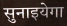
सुनाइयेगा